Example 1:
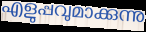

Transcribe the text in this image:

എളുപ്പവുമാക്കുന്നു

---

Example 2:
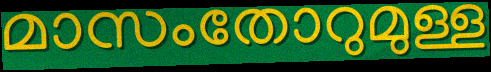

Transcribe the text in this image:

മാസംതോറുമുള്ള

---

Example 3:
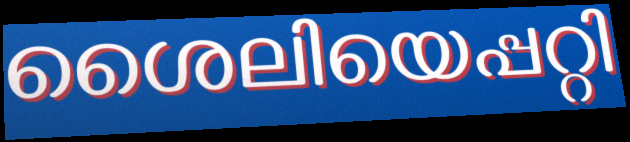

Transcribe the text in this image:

ശൈലിയെപ്പറ്റി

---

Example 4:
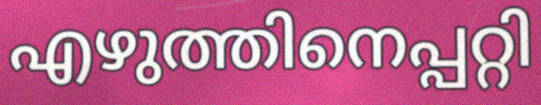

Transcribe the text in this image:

എഴുത്തിനെപ്പറ്റി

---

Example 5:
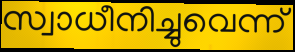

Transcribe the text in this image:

സ്വാധീനിച്ചുവെന്ന്